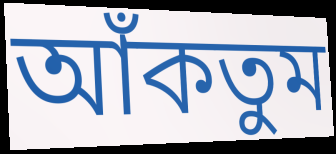
আঁকতুম